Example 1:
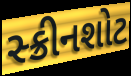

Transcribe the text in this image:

સ્ક્રીનશોટ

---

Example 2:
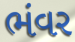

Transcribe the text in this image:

ભંવર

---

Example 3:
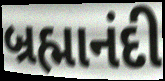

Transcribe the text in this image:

બ્રહ્માનંદી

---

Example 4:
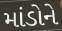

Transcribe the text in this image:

માંડોને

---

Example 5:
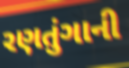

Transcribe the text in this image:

રણતુંગાની